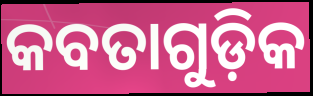
କବତାଗୁଡ଼ିକ